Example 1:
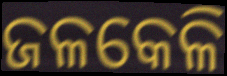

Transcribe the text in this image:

ଜଳକେଳି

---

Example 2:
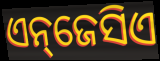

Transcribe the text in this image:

ଏନ୍‌ଜେସିଏ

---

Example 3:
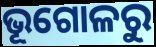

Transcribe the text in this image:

ଭୂଗୋଳରୁ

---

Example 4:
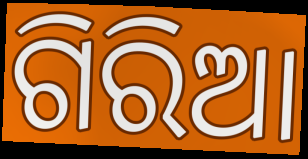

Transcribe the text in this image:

ଗିରିଆ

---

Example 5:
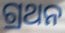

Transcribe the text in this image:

ଗ୍ରଥନ